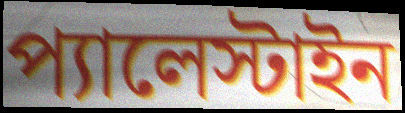
প্যালেস্টাইন